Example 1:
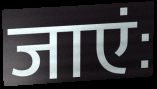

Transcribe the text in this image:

जाएंः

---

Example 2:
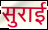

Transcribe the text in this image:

सुराई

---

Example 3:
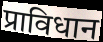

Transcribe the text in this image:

प्राविधान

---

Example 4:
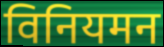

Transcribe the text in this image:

विनियमन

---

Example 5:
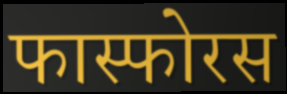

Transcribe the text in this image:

फास्फोरस